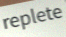
replete